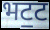
भट॒ट